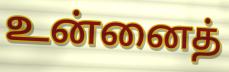
உன்னைத்